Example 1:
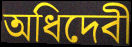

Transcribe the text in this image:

অধিদেবী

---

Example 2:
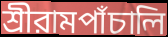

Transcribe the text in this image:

শ্রীরামপাঁচালি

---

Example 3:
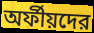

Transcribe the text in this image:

অর্ফীয়দের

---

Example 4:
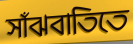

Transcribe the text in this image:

সাঁঝবাতিতে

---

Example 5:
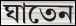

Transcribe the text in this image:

ঘাতেন